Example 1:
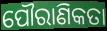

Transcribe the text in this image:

ପୌରାଣିକତା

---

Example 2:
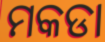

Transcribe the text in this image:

ମକଡା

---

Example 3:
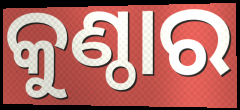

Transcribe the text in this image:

କୁଣ୍ଠାର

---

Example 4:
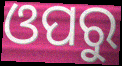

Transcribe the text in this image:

ଓପରୁ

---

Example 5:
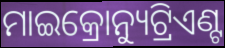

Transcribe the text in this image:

ମାଇକ୍ରୋନ୍ୟୁଟ୍ରିଏଣ୍ଟ